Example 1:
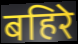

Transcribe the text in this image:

बहिरे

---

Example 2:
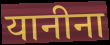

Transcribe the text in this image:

यानीना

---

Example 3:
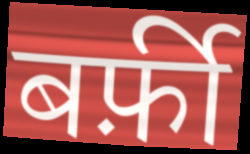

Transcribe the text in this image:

बर्फ़ी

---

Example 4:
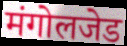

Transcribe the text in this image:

मंगोलजेड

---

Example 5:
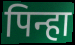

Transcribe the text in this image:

पिन्हा